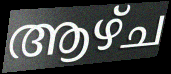
ആഴ്ച